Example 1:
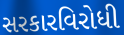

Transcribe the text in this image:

સરકારવિરોધી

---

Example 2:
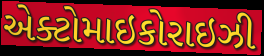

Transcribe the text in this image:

એક્ટોમાઇકોરાઇઝી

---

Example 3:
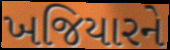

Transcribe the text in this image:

ખજિયારને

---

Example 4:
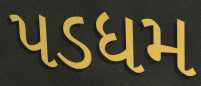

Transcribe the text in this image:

પડધમ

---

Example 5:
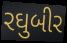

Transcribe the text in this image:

રઘુબીર